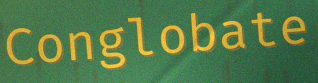
Conglobate